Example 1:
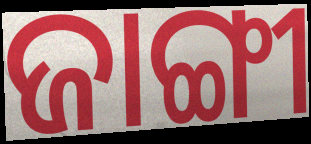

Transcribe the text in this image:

ଜାଙ୍ଗୀ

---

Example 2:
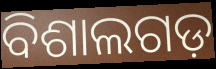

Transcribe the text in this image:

ବିଶାଲଗଡ଼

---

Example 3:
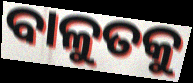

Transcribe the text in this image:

ବାଳୁତକୁ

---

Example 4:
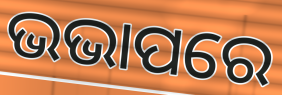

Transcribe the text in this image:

ଭଭାପରେ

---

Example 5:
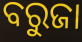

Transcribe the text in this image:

ବରୁଜା